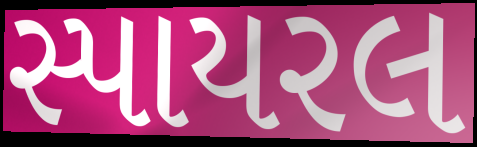
સ્પાયરલ